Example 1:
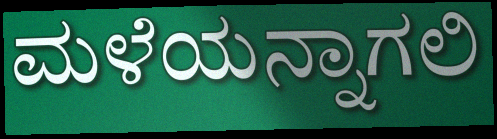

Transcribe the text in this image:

ಮಳೆಯನ್ನಾಗಲಿ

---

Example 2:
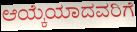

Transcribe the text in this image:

ಆಯ್ಕೆಯಾದವರಿಗೆ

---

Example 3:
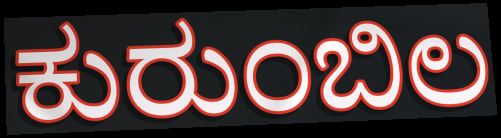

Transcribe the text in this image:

ಕುರುಂಬಿಲ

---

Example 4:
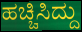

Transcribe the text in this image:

ಹಚ್ಚಿಸಿದ್ದು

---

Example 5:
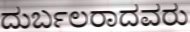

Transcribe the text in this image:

ದುರ್ಬಲರಾದವರು